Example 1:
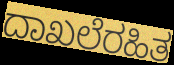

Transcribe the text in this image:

ದಾಖಲೆರಹಿತ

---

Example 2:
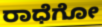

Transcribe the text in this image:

ರಾಧೆಗೋ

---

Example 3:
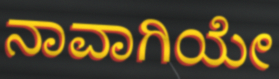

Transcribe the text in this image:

ನಾವಾಗಿಯೇ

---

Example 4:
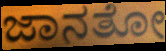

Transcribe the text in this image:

ಜಾನತೋ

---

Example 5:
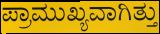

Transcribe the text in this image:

ಪ್ರಾಮುಖ್ಯವಾಗಿತ್ತು